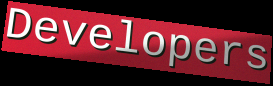
Developers